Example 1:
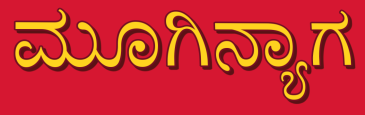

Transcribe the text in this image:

ಮೂಗಿನ್ಯಾಗ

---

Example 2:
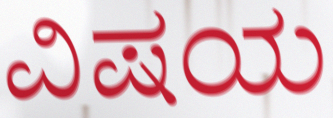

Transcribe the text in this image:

ವಿಷಯ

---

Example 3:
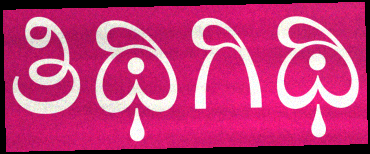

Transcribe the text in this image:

ತಿಥಿಗಿಥಿ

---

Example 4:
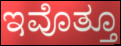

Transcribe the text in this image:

ಇವೊತ್ತೂ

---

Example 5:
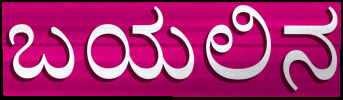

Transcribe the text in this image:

ಬಯಲಿನ